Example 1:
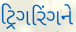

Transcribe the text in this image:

ટ્રિગરિંગને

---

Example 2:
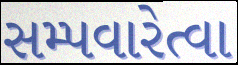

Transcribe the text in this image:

સમ્પવારેત્વા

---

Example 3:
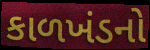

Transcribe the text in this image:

કાળખંડનો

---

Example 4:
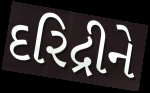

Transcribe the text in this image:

દરિદ્રીને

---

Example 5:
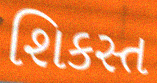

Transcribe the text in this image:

શિકસ્ત